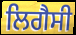
ਲਿਗੈਸੀ